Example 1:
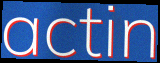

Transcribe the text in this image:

actin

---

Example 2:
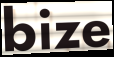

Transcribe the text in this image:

bize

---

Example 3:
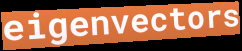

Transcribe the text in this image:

eigenvectors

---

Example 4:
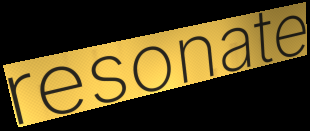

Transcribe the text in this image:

resonate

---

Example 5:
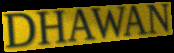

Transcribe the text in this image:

DHAWAN